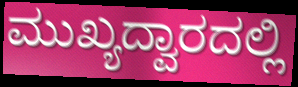
ಮುಖ್ಯದ್ವಾರದಲ್ಲಿ